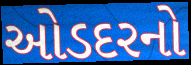
ઓડદરનો